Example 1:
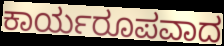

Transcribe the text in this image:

ಕಾರ್ಯರೂಪವಾದ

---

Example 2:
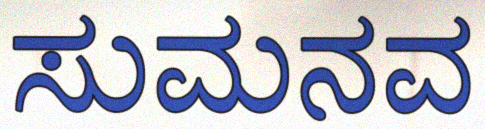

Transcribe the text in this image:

ಸುಮನವ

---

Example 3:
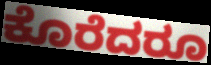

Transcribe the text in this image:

ಕೊರೆದರೂ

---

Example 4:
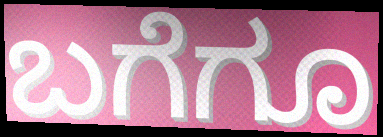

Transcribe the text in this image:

ಬಗೆಗೂ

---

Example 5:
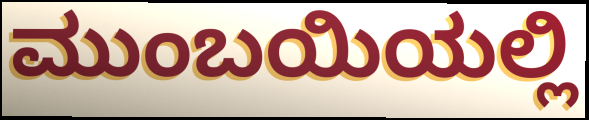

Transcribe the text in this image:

ಮುಂಬಯಿಯಲ್ಲಿ